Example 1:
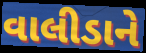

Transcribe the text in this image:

વાલીડાને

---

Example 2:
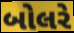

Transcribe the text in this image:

બોલરે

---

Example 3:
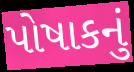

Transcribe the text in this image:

પોષાકનું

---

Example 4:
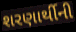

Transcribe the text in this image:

શરણાર્થીની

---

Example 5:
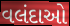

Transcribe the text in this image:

વલંદાઓ